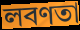
লবণতা